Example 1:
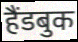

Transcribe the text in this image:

हैंडबुक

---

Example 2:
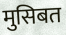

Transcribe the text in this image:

मुसिबत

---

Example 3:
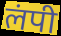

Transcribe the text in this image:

लंपी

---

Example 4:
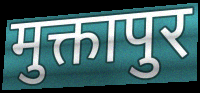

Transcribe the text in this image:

मुक्तापुर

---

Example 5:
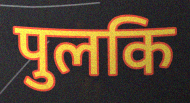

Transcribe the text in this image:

पुलकि